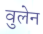
वुलेन